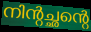
നിന്റച്ഛന്റെ